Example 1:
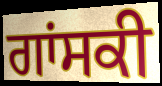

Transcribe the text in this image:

ਗਾਂਸਕੀ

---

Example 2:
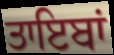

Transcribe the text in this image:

ਤਾਇਬਾਂ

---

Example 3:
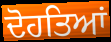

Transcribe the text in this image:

ਦੋਹਤਿਆਂ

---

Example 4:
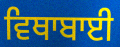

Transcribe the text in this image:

ਵਿਥਾਬਾਈ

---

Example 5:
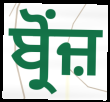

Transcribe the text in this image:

ਬ੍ਰੋਂਜ਼